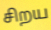
சிறய